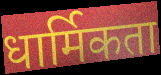
धार्मिकता